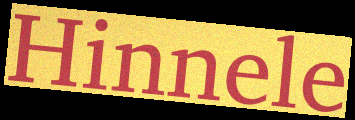
Hinnele